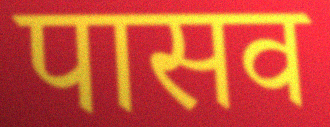
पासव